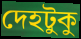
দেহটুকু